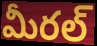
మీరల్